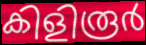
കിളിരൂർ